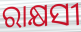
ରାକ୍ଷସୀ